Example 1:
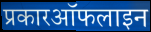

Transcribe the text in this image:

प्रकारऑफलाइन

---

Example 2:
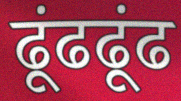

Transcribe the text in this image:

ढूंढढूंढ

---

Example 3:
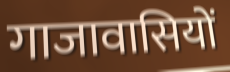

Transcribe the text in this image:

गाजावासियों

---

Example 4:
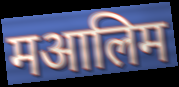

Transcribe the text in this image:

मआलिम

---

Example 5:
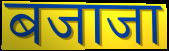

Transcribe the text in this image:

बजाजा